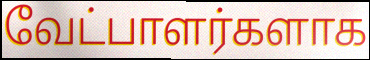
வேட்பாளர்களாக